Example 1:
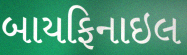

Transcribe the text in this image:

બાયફિનાઇલ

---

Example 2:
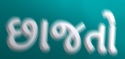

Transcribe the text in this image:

છાજતો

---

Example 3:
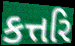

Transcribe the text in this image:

કત્તરિ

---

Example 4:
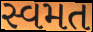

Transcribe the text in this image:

સ્વમત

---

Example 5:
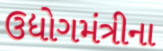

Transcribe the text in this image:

ઉદ્યોગમંત્રીના